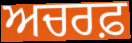
ਅਚਰਫ਼